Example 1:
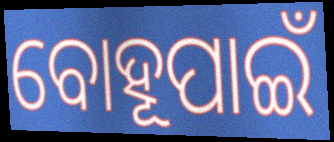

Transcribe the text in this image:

ବୋହୂପାଇଁ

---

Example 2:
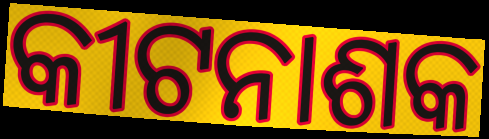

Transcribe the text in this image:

କୀଟନାଶକ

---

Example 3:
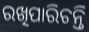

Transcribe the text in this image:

ରଖିପାରିଚନ୍ତି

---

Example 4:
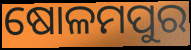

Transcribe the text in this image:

ଷୋଳମପୁର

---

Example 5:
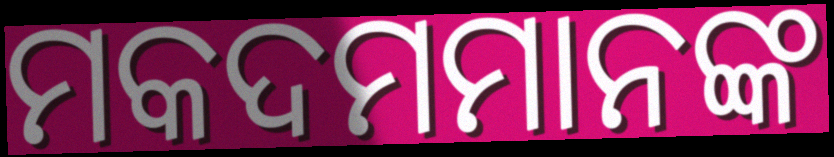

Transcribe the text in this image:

ମକଦମମାନଙ୍କ